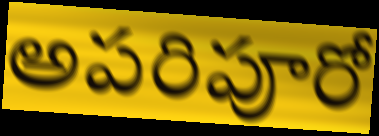
అపరిపూరో